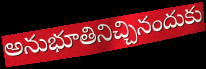
అనుభూతినిచ్చినందుకు